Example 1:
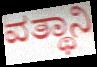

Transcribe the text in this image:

ವತ್ಥಾನಿ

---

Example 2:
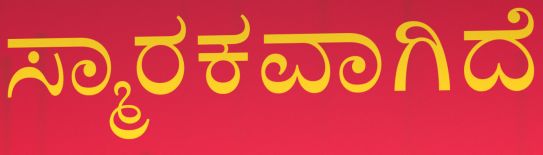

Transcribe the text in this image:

ಸ್ಮಾರಕವಾಗಿದೆ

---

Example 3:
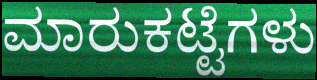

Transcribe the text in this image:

ಮಾರುಕಟ್ಟೆಗಳು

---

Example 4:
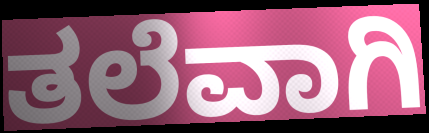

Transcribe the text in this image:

ತಲೆವಾಗಿ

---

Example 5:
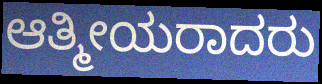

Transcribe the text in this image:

ಆತ್ಮೀಯರಾದರು